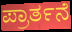
ಪ್ರಾರ್ತನೆ